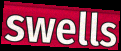
swells